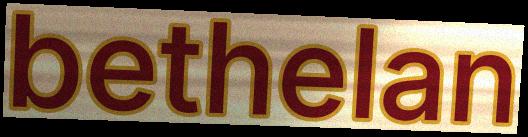
bethelan